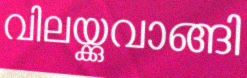
വിലയ്ക്കുവാങ്ങി